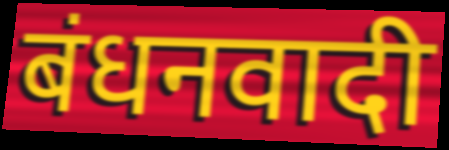
बंधनवादी